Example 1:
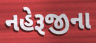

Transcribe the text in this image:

નહેરૂજીના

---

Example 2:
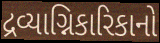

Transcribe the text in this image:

દ્રવ્યાગ્નિકારિકાનો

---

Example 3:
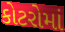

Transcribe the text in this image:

કોટરોમાં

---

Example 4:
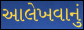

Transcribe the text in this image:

આલેખવાનું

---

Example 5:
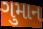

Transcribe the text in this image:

ગુમાન